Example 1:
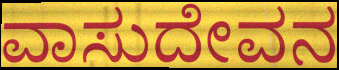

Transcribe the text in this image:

ವಾಸುದೇವನ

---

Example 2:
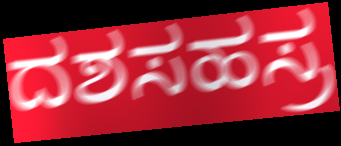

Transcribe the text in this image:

ದಶಸಹಸ್ರ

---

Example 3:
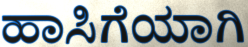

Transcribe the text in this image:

ಹಾಸಿಗೆಯಾಗಿ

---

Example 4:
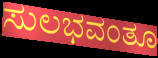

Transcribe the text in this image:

ಸುಲಭವಂತೂ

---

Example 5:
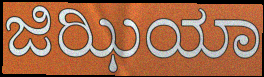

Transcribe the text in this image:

ಜಿಝಿಯಾ